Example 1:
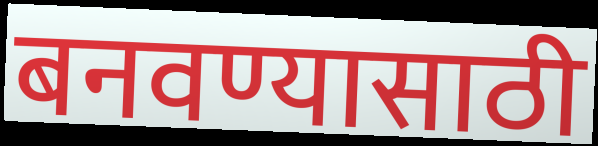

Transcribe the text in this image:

बनवण्यासाठी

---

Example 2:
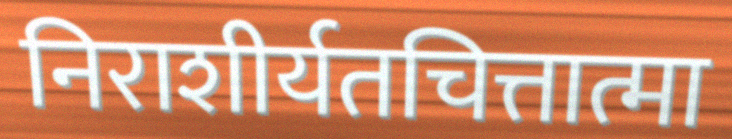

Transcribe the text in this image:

निराशीर्यतचित्तात्मा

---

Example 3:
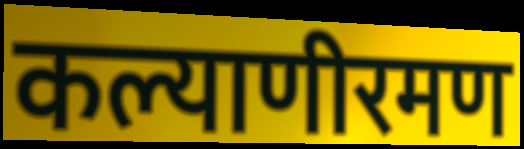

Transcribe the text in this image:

कल्याणीरमण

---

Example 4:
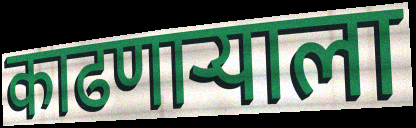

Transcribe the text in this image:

काढणार्‍याला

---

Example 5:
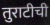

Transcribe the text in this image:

तुराटीची